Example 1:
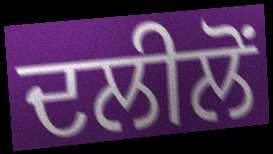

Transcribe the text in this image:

ਦਲੀਲੋਂ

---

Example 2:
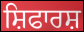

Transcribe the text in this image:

ਸ਼ਿਫਾਰਸ਼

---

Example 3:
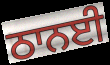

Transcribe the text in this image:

ਠਾਨਈ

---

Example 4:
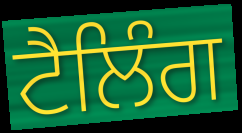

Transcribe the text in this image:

ਟੈਲਿੰਗ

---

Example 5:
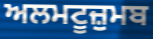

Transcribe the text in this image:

ਅਲਮਟੂਜ਼ੁਮਬ